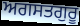
ਅਗਸਤਗੁਰੂ